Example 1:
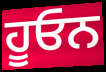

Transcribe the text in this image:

ਹੂਓਨ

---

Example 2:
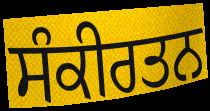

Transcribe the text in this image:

ਸੰਕੀਰਤਨ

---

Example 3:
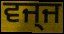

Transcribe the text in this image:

ਵਜ੍ਜ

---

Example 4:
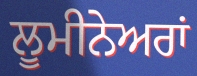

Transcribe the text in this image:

ਲੂਮੀਨੇਅਰਾਂ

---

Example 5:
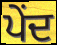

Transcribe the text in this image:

ਪੇਂਦ